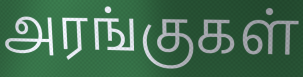
அரங்குகள்